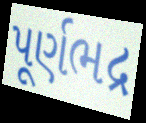
પૂર્ણભદ્ર